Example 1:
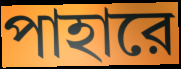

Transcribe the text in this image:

পাহারে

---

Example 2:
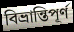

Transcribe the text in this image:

বিভ্রান্তিপূর্ণ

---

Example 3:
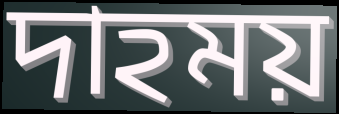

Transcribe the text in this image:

দাহময়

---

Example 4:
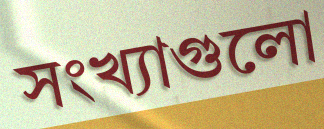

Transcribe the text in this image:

সংখ্যাগুলো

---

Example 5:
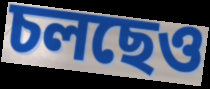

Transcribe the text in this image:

চলছেও